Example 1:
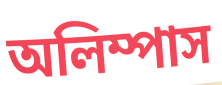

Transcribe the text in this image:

অলিম্পাস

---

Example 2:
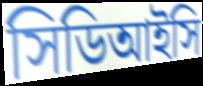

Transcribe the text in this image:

সিডিআইসি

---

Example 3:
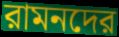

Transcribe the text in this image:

রামনদের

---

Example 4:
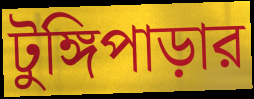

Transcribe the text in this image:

টুঙ্গিপাড়ার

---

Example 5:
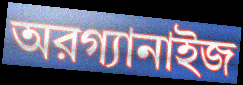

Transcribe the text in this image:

অরগ্যানাইজ